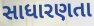
સાધારણતા